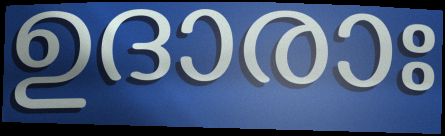
ഉദാരാഃ